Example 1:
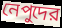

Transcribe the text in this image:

নেপুদের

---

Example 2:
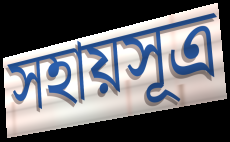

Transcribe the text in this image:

সহায়সূত্র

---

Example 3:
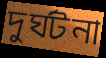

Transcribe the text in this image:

দুর্ঘটনা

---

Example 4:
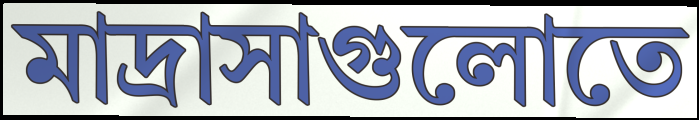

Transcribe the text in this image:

মাদ্রাসাগুলোতে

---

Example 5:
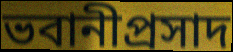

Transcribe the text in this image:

ভবানীপ্রসাদ